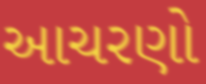
આચરણો